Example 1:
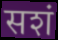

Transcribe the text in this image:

सशं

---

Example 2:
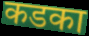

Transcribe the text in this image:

कडका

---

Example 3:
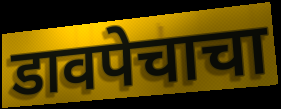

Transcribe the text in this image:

डावपेचाचा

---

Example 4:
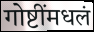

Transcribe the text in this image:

गोष्टींमधलं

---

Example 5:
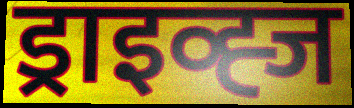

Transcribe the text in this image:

ड्राइव्ह्ज